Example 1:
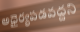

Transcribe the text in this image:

అధైర్యపడవద్దని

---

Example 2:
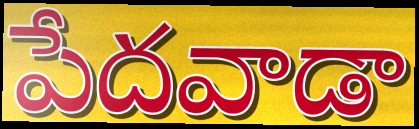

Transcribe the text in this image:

పేదవాడా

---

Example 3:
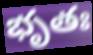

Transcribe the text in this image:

భృతః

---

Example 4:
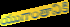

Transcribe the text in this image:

యుగాంతానికి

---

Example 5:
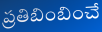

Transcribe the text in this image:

ప్రతిబింబించే